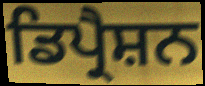
ਡਿਪ੍ਰੈਸ਼ਨ